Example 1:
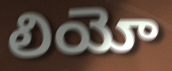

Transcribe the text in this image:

లియో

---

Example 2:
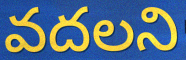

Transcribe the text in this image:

వదలని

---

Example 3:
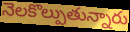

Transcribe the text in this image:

నెలకొల్పుతున్నారు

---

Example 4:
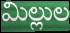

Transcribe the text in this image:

మిల్లుల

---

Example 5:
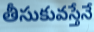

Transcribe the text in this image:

తీసుకువస్తేనే